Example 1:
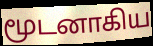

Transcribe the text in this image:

மூடனாகிய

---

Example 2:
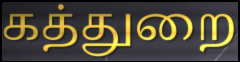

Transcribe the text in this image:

கத்துறை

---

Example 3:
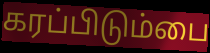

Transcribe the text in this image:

கரப்பிடும்பை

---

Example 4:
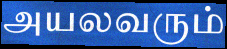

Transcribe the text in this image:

அயலவரும்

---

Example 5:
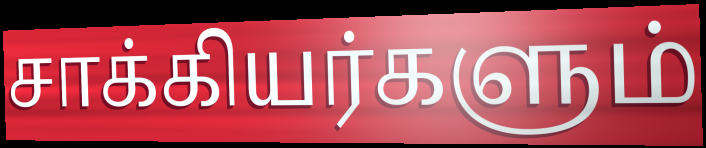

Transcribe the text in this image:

சாக்கியர்களும்